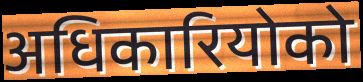
अधिकारियोको